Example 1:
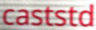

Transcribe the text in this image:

caststd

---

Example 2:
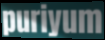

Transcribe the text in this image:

puriyum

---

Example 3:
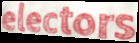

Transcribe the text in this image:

electors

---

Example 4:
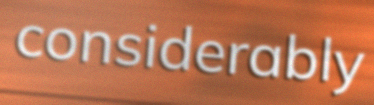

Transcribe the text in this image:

considerably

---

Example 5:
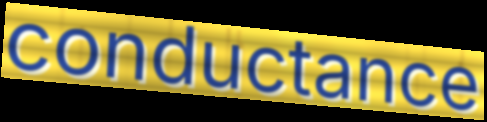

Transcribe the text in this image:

conductance